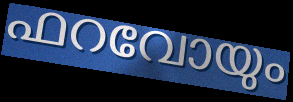
ഫറവോയും